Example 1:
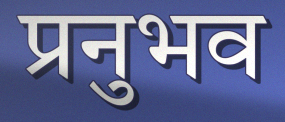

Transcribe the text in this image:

प्रनुभव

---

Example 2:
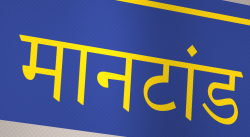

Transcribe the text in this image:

मानटांड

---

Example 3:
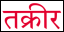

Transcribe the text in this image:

तक्रीर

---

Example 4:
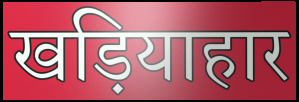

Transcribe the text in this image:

खड़ियाहार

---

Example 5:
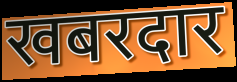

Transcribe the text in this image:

खबरदार